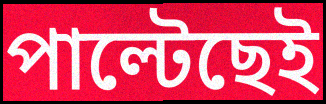
পাল্টেছেই